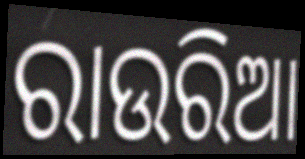
ରାଉରିଆ